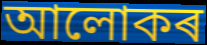
আলোকৰ